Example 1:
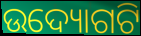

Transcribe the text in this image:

ଉଦ୍ୟୋଗଟି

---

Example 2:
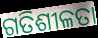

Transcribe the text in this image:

ଗତିଶୀଳତା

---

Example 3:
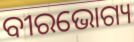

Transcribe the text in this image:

ବୀରଭୋଗ୍ୟ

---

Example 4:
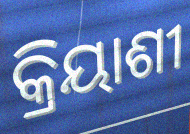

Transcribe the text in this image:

କ୍ରିୟାଶୀ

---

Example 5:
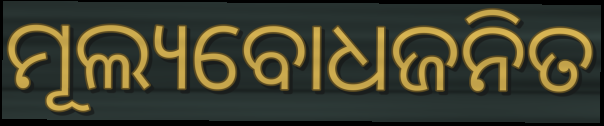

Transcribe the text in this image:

ମୂଲ୍ୟବୋଧଜନିତ